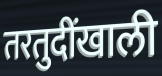
तरतुदींखाली